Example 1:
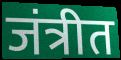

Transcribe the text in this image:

जंत्रीत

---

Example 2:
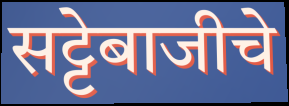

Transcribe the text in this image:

सट्टेबाजीचे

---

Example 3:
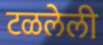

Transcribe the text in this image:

टळलेली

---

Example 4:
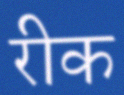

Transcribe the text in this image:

रीक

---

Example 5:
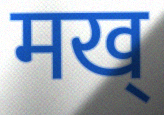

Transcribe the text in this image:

मख्